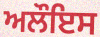
ਅਲੌਇਸ